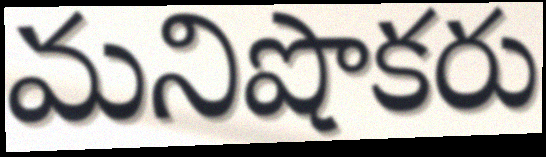
మనిషొకరు